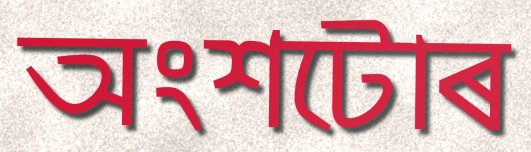
অংশটোৰ